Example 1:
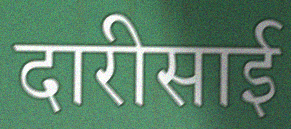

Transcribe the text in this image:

दारीसाई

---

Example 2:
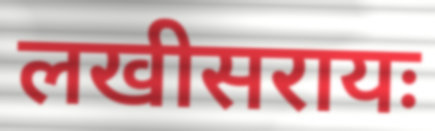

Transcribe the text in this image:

लखीसरायः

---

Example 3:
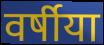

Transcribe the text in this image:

वर्षीया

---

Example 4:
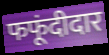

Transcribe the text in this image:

फफूंदीदार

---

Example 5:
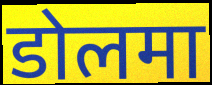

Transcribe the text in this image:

डोलमा